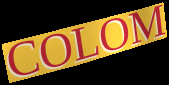
COLOM